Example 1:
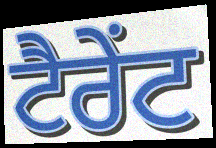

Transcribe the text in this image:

ਟੈਰੇਂਟ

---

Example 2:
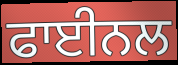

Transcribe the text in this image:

ਫਾਈਨਲ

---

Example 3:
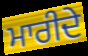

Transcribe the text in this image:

ਮਾਰੀਦੇ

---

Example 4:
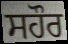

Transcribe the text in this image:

ਸਹੌਰ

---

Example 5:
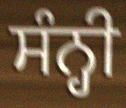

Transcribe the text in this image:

ਸੰਨ੍ਹ੍ਹੀ